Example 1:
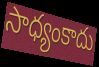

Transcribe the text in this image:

సాధ్యంకాదు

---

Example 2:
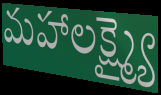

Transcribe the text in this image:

మహాలక్ష్మ్యై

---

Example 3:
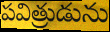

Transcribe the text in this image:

పవిత్రుడును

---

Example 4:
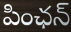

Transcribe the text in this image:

పింఛన్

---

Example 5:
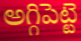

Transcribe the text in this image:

అగ్గిపెట్టె